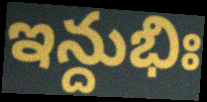
ఇన్దుభిః